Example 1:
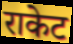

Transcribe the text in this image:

राकेट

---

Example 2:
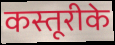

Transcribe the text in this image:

कस्तूरीके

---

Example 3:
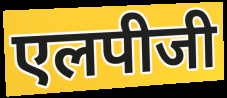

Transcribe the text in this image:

एलपीजी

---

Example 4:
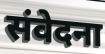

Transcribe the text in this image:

संवेदना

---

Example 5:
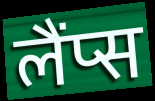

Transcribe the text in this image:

लैंप्स